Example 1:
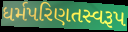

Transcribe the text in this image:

ધર્મપરિણતસ્વરૂપ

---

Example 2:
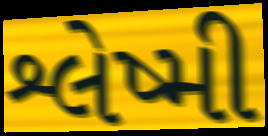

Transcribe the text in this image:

શ્લેષ્મી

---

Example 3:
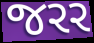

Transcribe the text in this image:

જરર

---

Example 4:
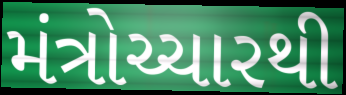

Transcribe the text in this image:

મંત્રોચ્ચારથી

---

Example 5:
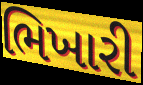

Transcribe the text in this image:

ભિખારી